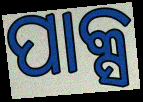
ପାକ୍ସ